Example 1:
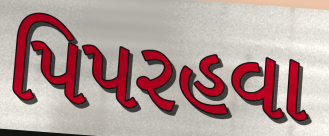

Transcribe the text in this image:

પિપરહવા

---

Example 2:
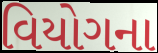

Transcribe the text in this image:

વિયોગના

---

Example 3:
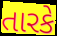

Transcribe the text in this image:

તારકે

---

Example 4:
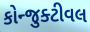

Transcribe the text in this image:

કોન્જુક્ટીવલ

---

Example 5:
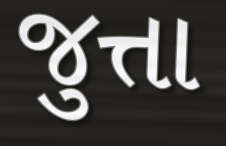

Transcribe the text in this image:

જુત્તા